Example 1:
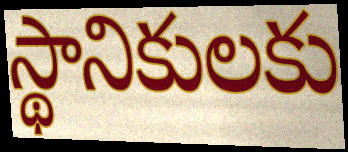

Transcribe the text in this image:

స్థానికులకు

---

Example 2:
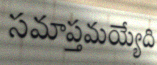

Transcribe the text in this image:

సమాప్తమయ్యేది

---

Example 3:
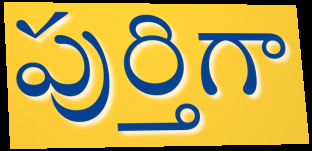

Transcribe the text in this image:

పుర్తిగా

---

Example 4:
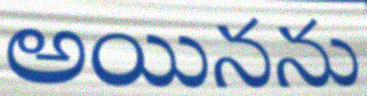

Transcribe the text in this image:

అయినను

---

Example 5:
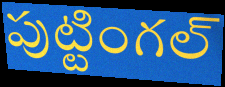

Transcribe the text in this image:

పుట్టింగల్